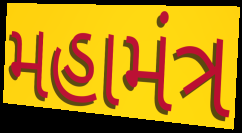
મહામંત્ર